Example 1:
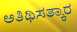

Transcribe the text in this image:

ಅತಿಥಿಸತ್ಕಾರ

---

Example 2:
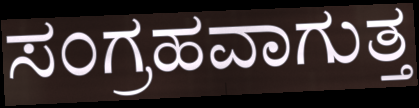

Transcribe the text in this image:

ಸಂಗ್ರಹವಾಗುತ್ತ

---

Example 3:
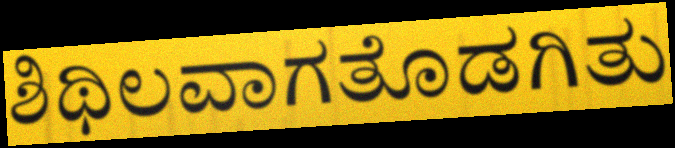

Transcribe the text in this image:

ಶಿಥಿಲವಾಗತೊಡಗಿತು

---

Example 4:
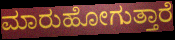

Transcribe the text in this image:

ಮಾರುಹೋಗುತ್ತಾರೆ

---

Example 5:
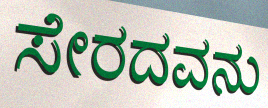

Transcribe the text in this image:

ಸೇರದವನು